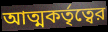
আত্মকর্তৃত্বের